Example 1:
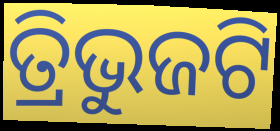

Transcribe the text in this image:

ତ୍ରିଭୁଜଟି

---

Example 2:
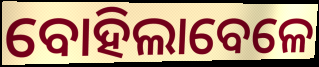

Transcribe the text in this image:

ବୋହିଲାବେଳେ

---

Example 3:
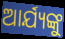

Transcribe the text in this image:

ଆର୍ଯ୍ୟଙ୍କୁ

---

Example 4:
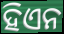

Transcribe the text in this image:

ହିଏନ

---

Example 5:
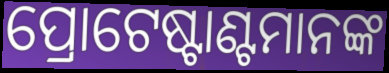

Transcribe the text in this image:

ପ୍ରୋଟେଷ୍ଟାଣ୍ଟମାନଙ୍କ